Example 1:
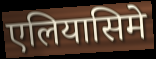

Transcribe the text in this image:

एलियासिमे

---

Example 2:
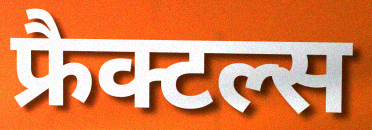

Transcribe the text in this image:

फ्रैक्टल्स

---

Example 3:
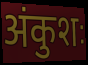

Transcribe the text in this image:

अंकुशः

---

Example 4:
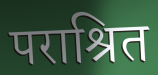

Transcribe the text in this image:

पराश्रित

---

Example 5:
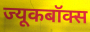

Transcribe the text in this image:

ज्यूकबॉक्स